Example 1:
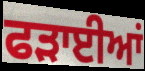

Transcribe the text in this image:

ਫੜਾਈਆਂ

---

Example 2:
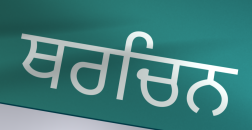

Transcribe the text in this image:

ਥਰਚਿਨ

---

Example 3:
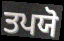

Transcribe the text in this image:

ਤਪਯੋ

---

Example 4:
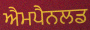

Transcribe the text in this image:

ਐਮਪੈਨਲਡ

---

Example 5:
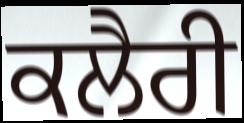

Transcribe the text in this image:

ਕਲੈਰੀ